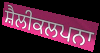
ਸ਼ੈਲੀਕਲਪਨਾ